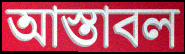
আস্তাবল